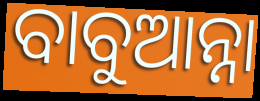
ବାବୁଆନ୍ନା